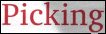
Picking